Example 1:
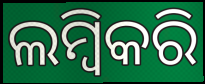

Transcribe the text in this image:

ଲମ୍ବିକରି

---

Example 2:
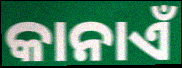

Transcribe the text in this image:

କାନାଏଁ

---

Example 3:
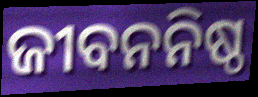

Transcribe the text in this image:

ଜୀବନନିଷ୍ଠ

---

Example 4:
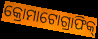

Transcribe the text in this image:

କ୍ରୋମାଟୋଗ୍ରାଫିକ୍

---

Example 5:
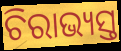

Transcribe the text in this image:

ଚିରାଭ୍ୟସ୍ତ